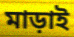
মাড়াই